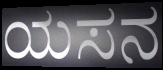
ಯಸನ